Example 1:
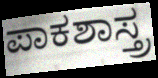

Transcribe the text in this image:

ಪಾಕಶಾಸ್ತ್ರ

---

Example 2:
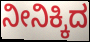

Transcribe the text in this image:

ನೀನಿಕ್ಕಿದ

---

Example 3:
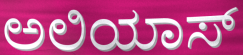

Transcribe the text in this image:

ಅಲಿಯಾಸ್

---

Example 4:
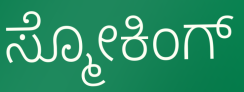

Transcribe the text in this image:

ಸ್ಮೋಕಿಂಗ್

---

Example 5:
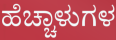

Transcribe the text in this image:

ಹೆಚ್ಚಾಳುಗಳ